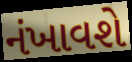
નંખાવશે